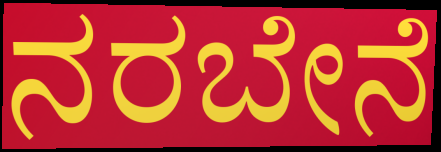
ನರಬೇನೆ